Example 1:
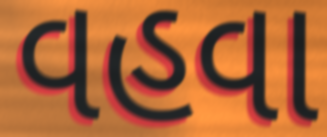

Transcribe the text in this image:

વહવા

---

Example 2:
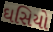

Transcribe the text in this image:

ઘસિયો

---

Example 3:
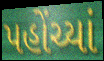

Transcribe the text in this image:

પહોંચ્યાં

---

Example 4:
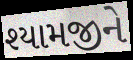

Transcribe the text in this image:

શ્યામજીને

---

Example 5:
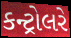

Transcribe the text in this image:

કન્ટ્રોલરે